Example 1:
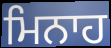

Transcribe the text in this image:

ਮਿਨਾਹ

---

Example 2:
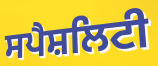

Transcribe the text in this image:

ਸਪੈਸ਼ਲਿਟੀ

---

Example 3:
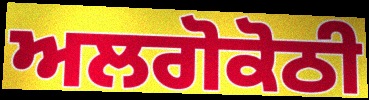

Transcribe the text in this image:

ਅਲਗੋਕੋਠੀ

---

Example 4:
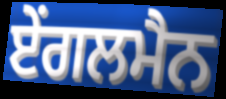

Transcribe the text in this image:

ਏਂਗਲਮੈਨ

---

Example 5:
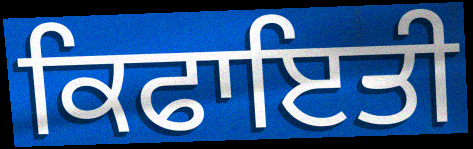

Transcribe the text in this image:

ਕਿਫਾਇਤੀ